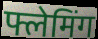
फ्लेमिंग